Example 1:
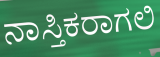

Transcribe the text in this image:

ನಾಸ್ತಿಕರಾಗಲಿ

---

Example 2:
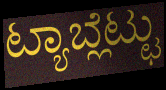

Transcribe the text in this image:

ಟ್ಯಾಬ್ಲೆಟ್ಟು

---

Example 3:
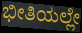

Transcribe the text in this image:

ಭೀತಿಯಲ್ಲೇ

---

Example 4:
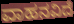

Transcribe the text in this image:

ವಾಹನವಿದೆ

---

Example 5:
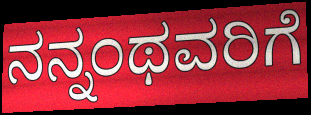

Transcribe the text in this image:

ನನ್ನಂಥವರಿಗೆ